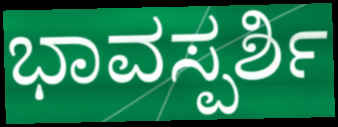
ಭಾವಸ್ಪರ್ಶಿ